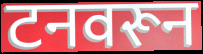
टनवरून